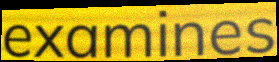
examines